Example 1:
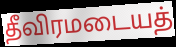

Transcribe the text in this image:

தீவிரமடையத்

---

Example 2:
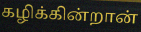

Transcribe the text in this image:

கழிக்கின்றான்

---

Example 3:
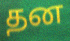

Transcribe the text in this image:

தன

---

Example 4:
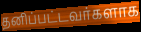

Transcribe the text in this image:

தனிப்பட்டவர்களாக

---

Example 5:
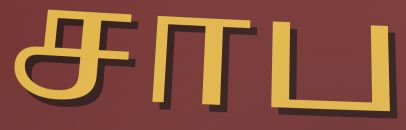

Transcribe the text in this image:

சாப